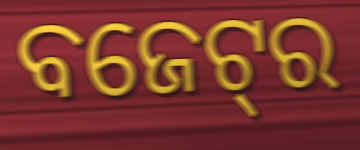
ବଜେଟ୍‌ର